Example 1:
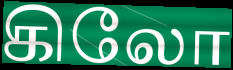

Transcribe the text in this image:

கிலோ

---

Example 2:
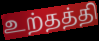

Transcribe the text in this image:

உற்தத்தி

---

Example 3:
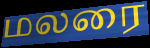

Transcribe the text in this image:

மலரை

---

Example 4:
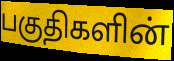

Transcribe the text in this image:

பகுதிகளின்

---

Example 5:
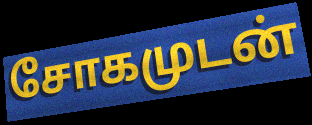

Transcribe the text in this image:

சோகமுடன்